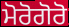
ਮੋਰੋਗੋਰੋ